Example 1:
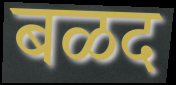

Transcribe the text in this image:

बळद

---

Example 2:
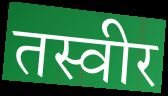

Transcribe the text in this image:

तस्वीर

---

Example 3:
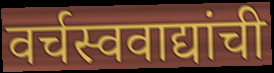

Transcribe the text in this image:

वर्चस्ववाद्यांची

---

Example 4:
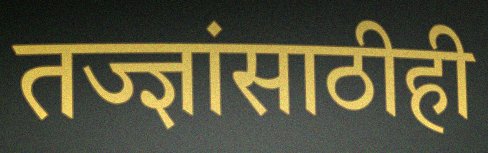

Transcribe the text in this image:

तज्ज्ञांसाठीही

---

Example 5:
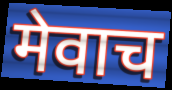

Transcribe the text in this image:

मेवाच